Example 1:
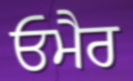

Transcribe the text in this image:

ਓਮੈਰ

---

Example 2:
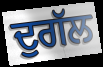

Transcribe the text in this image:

ਦੁਗੱਲ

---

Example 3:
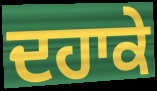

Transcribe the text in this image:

ਦਹਾਕੇ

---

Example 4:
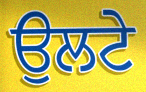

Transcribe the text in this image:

ਉਲਟੇ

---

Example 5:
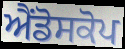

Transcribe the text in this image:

ਐਂਡੋਸਕੋਪ